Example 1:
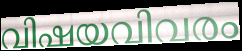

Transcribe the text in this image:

വിഷയവിവരം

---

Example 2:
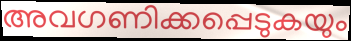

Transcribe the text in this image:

അവഗണിക്കപ്പെടുകയും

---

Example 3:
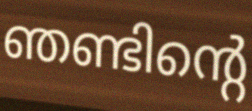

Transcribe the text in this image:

ഞണ്ടിന്റെ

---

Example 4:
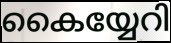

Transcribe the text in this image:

കൈയ്യേറി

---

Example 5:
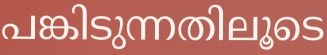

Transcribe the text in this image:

പങ്കിടുന്നതിലൂടെ